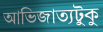
আভিজাত্যটুকু